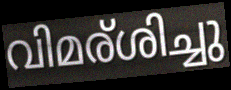
വിമര്ശിച്ചു